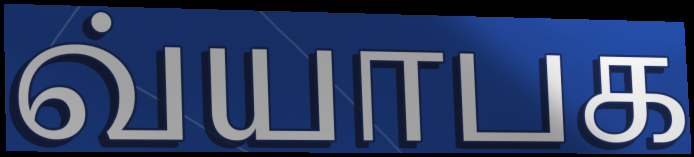
வ்யாபக